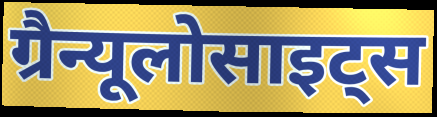
ग्रैन्यूलोसाइट्स